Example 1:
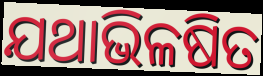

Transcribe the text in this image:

ଯଥାଭିଳଷିତ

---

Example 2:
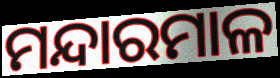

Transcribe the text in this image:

ମନ୍ଦାରମାଳ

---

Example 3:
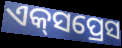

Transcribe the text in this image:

ଏକ୍‍ସପ୍ରେସ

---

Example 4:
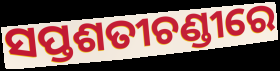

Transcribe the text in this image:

ସପ୍ତଶତୀଚଣ୍ଡୀରେ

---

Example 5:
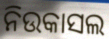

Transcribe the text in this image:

ନିଉକାସଲ